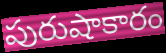
పురుషాకారం